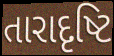
તારાદૃષ્ટિ